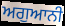
ਅਗੁਆਨੀ